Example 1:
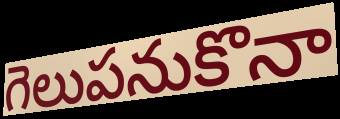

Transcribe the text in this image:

గెలుపనుకొనా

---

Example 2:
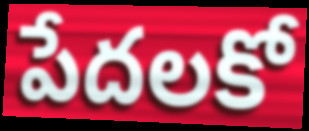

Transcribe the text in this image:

పేదలకో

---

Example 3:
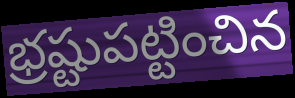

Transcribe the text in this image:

భ్రష్టుపట్టించిన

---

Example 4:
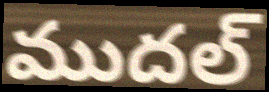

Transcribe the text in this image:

ముదల్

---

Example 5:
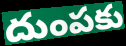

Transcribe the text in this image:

దుంపకు